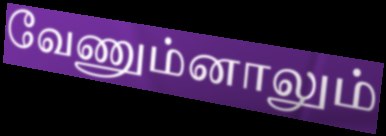
வேணும்னாலும்